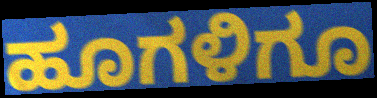
ಹೂಗಳಿಗೂ